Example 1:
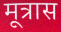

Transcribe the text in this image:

मूत्रास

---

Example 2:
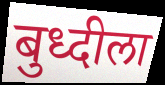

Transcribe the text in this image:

बुध्दीला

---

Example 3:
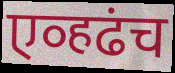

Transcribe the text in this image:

एव्हढंच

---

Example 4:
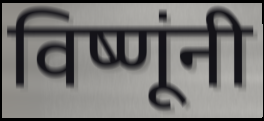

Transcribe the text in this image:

विष्णूंनी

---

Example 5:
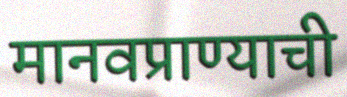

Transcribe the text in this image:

मानवप्राण्याची